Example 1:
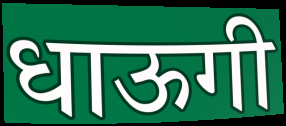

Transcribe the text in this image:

धाऊगी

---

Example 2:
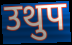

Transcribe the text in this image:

उथुप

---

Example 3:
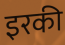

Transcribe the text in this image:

इरकी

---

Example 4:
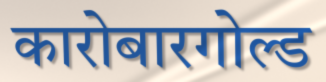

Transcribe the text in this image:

कारोबारगोल्ड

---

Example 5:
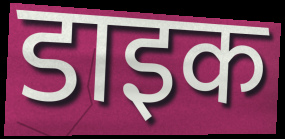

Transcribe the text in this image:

डाइक